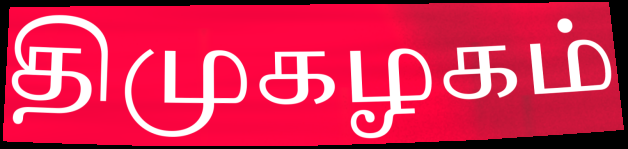
திமுகழகம்